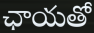
ఛాయతో